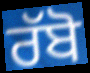
ਰੱਬੋ